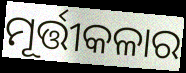
ମୂର୍ତ୍ତୀକଳାର